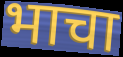
भाचा